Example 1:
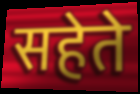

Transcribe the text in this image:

सहेते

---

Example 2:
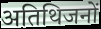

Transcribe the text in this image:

अतिथिजनों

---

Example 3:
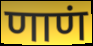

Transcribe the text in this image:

णाणं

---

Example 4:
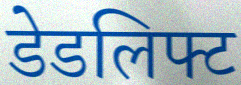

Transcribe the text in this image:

डेडलिफ्ट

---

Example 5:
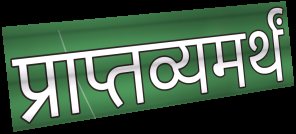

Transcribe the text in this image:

प्राप्तव्यमर्थं